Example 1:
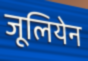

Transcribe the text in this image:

जूलियेन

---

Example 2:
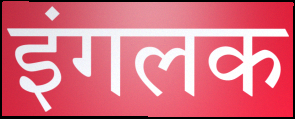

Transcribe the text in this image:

इंगलक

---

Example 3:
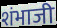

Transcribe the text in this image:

शंभाजी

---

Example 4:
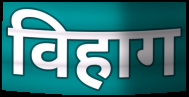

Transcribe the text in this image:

विहाग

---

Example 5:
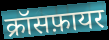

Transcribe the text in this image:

क्रॉसफ़ायर